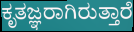
ಕೃತಜ್ಞರಾಗಿರುತ್ತಾರೆ